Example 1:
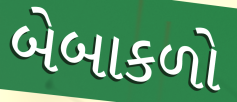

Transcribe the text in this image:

બેબાકળો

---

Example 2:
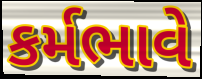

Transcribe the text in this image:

કર્મભાવે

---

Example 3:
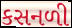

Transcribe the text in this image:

કસનળી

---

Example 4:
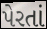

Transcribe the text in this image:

પેરતાં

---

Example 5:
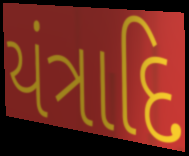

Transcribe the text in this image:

યંત્રાદિ